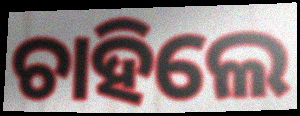
ଚାହିଲେ